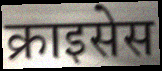
क्राइसेस